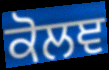
ਕੋਲਞ